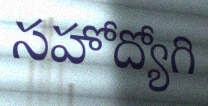
సహోద్యోగి